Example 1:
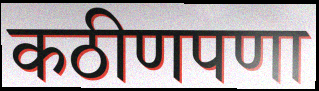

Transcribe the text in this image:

कठीणपणा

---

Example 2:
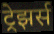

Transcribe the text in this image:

ट्रेझर्स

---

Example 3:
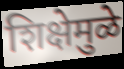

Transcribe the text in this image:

शिक्षेमुळे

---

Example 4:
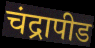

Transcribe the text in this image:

चंद्रापीड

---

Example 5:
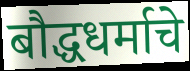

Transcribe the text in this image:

बौद्धधर्माचे